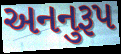
અનનુરૂપ